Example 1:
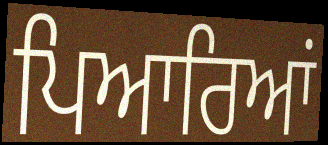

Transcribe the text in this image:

ਪਿਆਰਿਆਂ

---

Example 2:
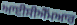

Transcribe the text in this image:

ਆਈਸੀਐੱਮਆਰ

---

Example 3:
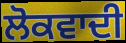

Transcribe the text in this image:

ਲੋਕਵਾਦੀ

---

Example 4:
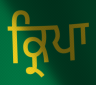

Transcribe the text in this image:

ਕ੍ਰਿਪਾ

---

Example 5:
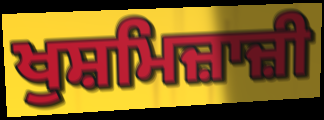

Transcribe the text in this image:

ਖੁਸ਼ਮਿਜ਼ਾਜ਼ੀ